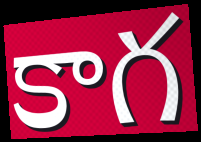
కాగ